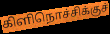
கிளிநொச்சிக்குச்